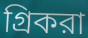
গ্রিকরা